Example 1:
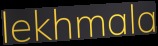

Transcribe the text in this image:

lekhmala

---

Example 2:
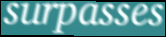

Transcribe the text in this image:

surpasses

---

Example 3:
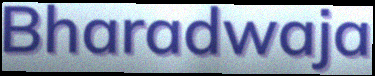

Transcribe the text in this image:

Bharadwaja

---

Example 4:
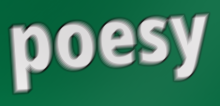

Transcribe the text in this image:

poesy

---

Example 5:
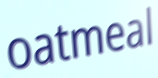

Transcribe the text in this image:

oatmeal